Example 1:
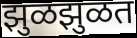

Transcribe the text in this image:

झुळझुळत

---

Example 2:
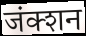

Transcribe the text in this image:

जंक्शन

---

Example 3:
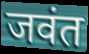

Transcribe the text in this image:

जवंत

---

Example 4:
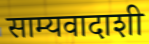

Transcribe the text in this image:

साम्यवादाशी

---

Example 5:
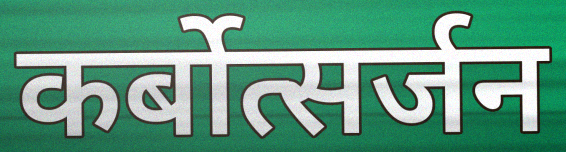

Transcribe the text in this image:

कर्बोत्सर्जन